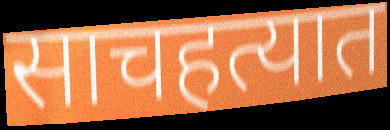
साचहत्यात